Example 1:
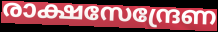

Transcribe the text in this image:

രാക്ഷസേന്ദ്രേണ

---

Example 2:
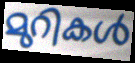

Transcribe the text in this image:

മുറികൾ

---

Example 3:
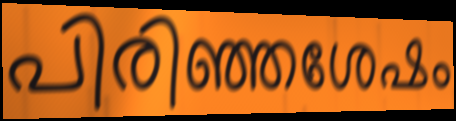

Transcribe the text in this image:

പിരിഞ്ഞശേഷം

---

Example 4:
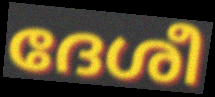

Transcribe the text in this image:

ദേശീ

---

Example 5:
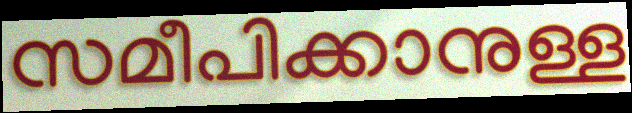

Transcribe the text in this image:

സമീപിക്കാനുള്ള